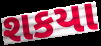
શકયા